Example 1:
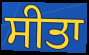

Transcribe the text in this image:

ਸੀਤਾ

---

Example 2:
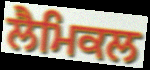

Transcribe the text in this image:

ਲੈਮਿਕਲ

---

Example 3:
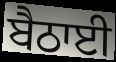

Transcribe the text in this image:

ਬੈਠਾਈ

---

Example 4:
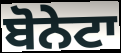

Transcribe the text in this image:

ਬੋਨੇਟਾ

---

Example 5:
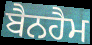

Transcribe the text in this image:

ਬੈਨਹੈਮ